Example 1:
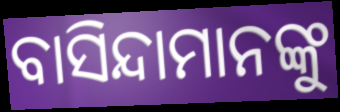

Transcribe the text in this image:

ବାସିନ୍ଦାମାନଙ୍କୁ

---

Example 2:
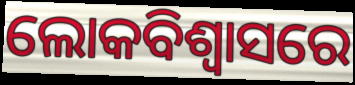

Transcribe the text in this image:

ଲୋକବିଶ୍ୱାସରେ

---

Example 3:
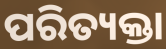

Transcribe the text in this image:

ପରିତ୍ୟକ୍ତା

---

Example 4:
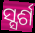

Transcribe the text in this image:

ସ୍ସର୍ଶ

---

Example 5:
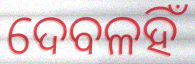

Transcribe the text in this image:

ଦେବଳହିଁ